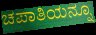
ಚಪಾತಿಯನ್ನೂ